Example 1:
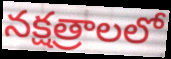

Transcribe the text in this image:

నక్షత్రాలలో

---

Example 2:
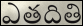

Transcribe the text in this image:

ఎతదితి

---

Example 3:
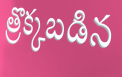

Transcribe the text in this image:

త్రొక్కబడిన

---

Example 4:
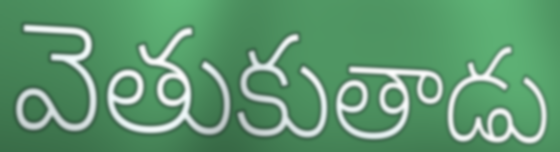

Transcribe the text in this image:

వెతుకుతాడు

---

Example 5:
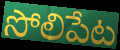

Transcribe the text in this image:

సోలిపేట